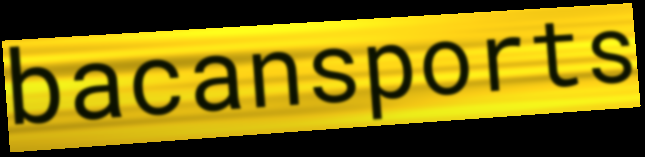
bacansports